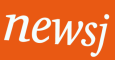
newsj